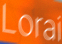
Lorai